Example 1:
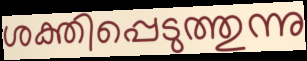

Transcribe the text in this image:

ശക്തിപ്പെടുത്തുന്നു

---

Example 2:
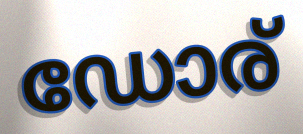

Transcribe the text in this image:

ഡോര്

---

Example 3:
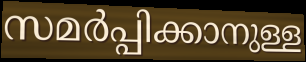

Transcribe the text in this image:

സമർപ്പിക്കാനുള്ള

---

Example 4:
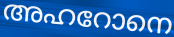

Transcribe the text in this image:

അഹറോനെ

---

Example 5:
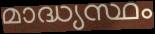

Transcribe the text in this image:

മാദ്ധ്യസ്ഥം